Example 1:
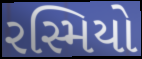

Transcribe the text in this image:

રસ્મિયો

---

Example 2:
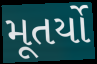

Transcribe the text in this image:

મૂતર્યો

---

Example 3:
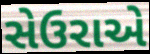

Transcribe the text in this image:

સેઉરાએ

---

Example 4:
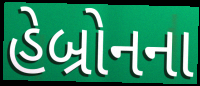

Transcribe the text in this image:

હેબ્રોનના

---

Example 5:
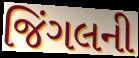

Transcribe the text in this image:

જિંગલની